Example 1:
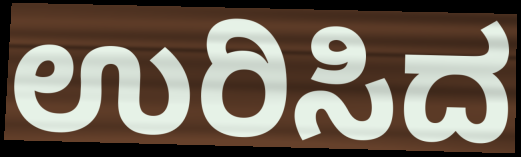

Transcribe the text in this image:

ಉರಿಸಿದ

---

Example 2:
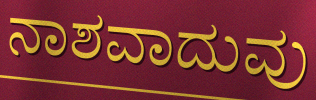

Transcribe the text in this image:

ನಾಶವಾದುವು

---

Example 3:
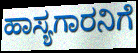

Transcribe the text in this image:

ಹಾಸ್ಯಗಾರನಿಗೆ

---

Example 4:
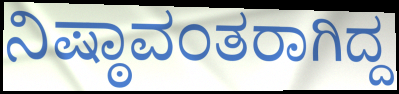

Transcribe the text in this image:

ನಿಷ್ಠಾವಂತರಾಗಿದ್ದ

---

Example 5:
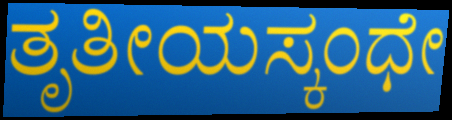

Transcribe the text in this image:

ತೃತೀಯಸ್ಕಂಧೇ